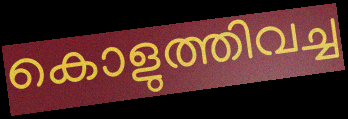
കൊളുത്തിവച്ച